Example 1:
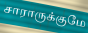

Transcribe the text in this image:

சாராருக்குமே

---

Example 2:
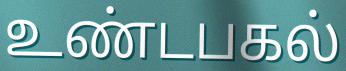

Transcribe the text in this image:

உண்டபகல்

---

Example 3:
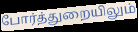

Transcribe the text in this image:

போர்த்துறையிலும்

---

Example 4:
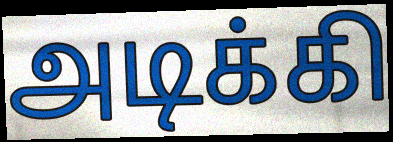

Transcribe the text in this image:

அடிக்கி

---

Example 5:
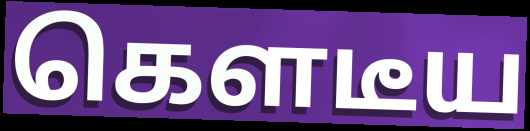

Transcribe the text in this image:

கௌடீய